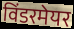
विंडरमेयर